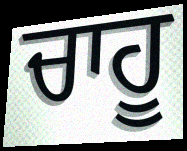
ਚਾਹੂ